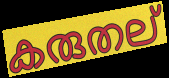
കരുതല്